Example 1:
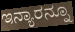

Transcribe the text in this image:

ಇನ್ಯಾರನ್ನೂ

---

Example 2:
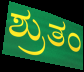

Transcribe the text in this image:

ಶ್ರುತಂ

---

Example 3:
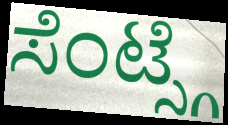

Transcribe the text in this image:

ಸೆಂಟ್ಸ್ಗೆ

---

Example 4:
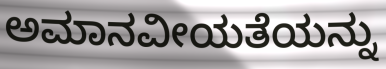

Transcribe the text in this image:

ಅಮಾನವೀಯತೆಯನ್ನು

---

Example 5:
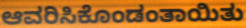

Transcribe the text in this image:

ಆವರಿಸಿಕೊಂಡಂತಾಯಿತು